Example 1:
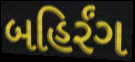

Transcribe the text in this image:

બહિર્રંગ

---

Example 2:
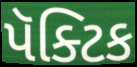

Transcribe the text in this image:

પૅક્ટિક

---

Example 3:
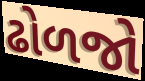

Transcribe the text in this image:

ઢોળજો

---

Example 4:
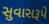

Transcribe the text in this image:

સુવાસરૂપે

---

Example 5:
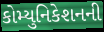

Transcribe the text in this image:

કોમ્યુનિકેશનની